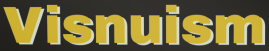
Visnuism